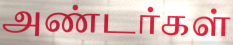
அண்டர்கள்